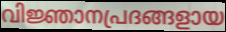
വിജ്ഞാനപ്രദങ്ങളായ